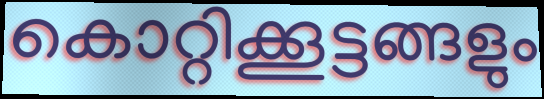
കൊറ്റിക്കൂട്ടങ്ങളും